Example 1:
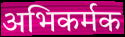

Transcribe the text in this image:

अभिकर्मक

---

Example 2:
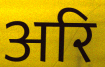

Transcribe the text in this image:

अरि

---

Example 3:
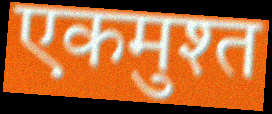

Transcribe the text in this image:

एकमुश्त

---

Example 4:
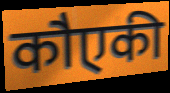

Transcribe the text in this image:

कौएकी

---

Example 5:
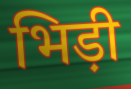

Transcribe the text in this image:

भिड़ी